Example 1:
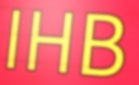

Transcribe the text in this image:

IHB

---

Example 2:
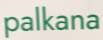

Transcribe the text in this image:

palkana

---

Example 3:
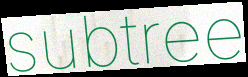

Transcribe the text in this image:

subtree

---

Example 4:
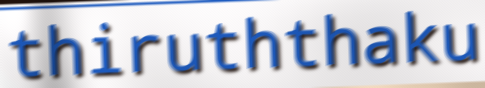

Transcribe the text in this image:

thiruththaku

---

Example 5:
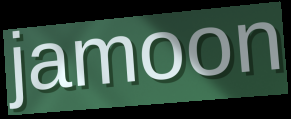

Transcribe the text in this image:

jamoon